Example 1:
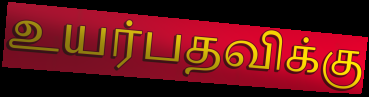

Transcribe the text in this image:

உயர்பதவிக்கு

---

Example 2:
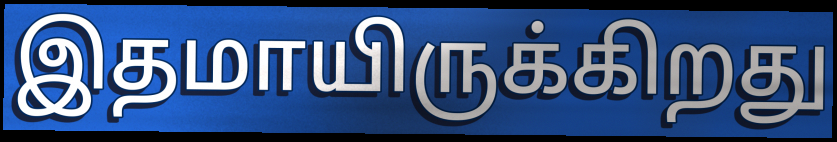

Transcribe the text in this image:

இதமாயிருக்கிறது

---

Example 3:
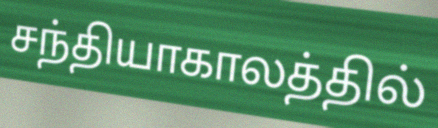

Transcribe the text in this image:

சந்தியாகாலத்தில்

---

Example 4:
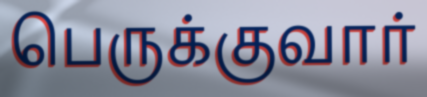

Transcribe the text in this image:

பெருக்குவார்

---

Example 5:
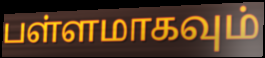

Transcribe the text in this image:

பள்ளமாகவும்